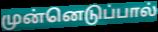
முன்னெடுப்பால்